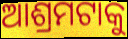
ଆଶ୍ରମଟାକୁ